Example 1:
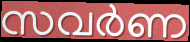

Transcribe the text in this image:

സവർണ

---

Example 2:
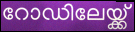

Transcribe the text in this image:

റോഡിലേയ്ക്ക്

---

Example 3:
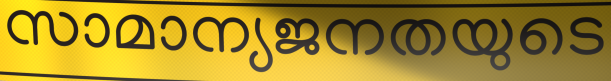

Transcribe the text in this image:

സാമാന്യജനതയുടെ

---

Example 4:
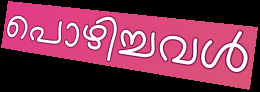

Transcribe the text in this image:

പൊഴിച്ചവൾ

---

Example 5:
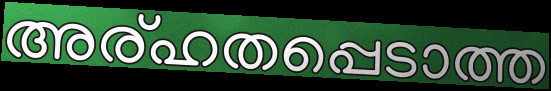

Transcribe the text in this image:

അര്ഹതപ്പെടാത്ത